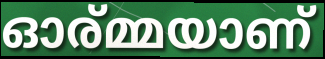
ഓര്മ്മയാണ്